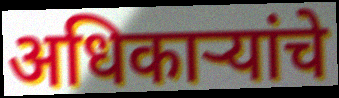
अधिकाऱ्यांचे